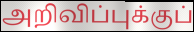
அறிவிப்புக்குப்